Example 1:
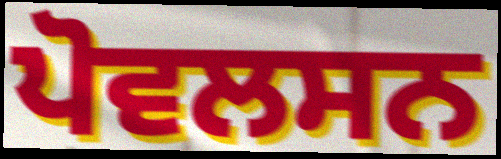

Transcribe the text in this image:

ਪੋਵਲਸਨ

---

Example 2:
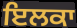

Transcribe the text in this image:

ਇਲਕਾ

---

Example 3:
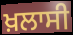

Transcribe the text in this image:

ਖ਼ਲਾਸੀ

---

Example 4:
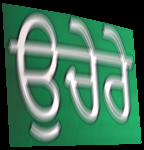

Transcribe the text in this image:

ਉਚੇਰੇ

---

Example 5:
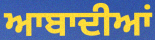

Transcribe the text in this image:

ਆਬਾਦੀਆਂ